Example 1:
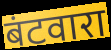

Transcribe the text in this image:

बंटवारा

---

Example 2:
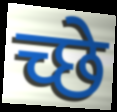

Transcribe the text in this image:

च्छे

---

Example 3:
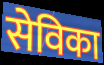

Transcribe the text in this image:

सेविका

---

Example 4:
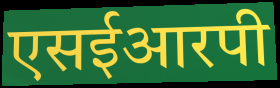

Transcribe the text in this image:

एसईआरपी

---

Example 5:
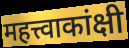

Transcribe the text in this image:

महत्त्वाकांक्षी